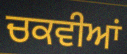
ਚਕਵੀਆਂ